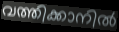
വത്തിക്കാനിൽ